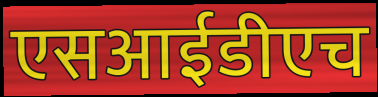
एसआईडीएच